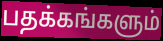
பதக்கங்களும்